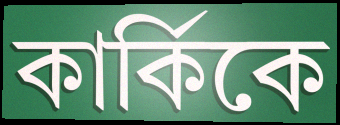
কার্কিকে